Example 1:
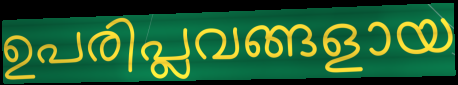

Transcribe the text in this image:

ഉപരിപ്ലവങ്ങളായ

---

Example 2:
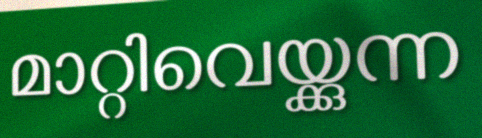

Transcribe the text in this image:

മാറ്റിവെയ്ക്കുന്ന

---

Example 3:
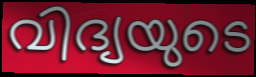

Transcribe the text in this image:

വിദ്യയുടെ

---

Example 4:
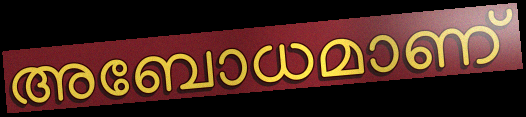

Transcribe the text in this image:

അബോധമാണ്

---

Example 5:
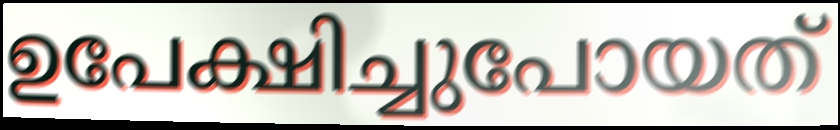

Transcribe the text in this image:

ഉപേക്ഷിച്ചുപോയത്